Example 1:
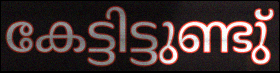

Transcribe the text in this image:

കേട്ടിട്ടുണ്ടു്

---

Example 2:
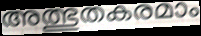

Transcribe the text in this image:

അത്ഭുതകരമാം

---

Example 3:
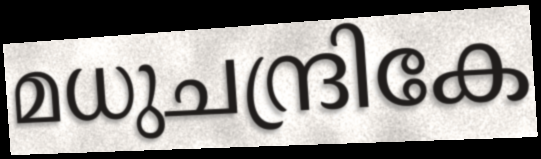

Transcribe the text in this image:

മധുചന്ദ്രികേ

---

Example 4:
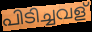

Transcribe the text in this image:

പിടിച്ചവള്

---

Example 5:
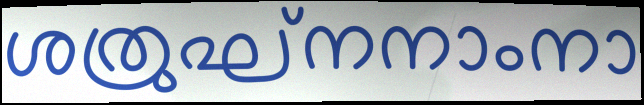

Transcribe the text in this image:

ശത്രുഘ്നനാംനാ